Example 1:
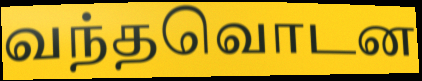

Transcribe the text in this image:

வந்தவொடன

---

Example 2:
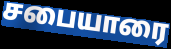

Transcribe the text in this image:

சபையாரை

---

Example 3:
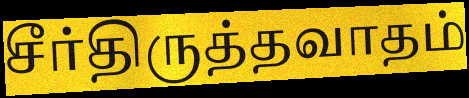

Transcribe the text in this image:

சீர்திருத்தவாதம்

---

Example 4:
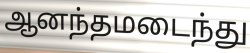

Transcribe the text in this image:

ஆனந்தமடைந்து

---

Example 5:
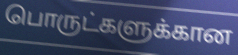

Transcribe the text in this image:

பொருட்களுக்கான